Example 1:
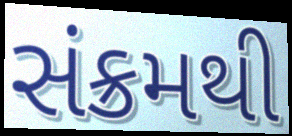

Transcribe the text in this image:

સંક્રમથી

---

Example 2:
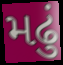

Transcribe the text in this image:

મઢું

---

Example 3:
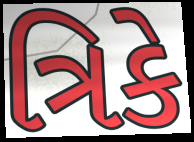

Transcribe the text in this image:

ત્રિકે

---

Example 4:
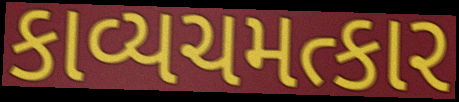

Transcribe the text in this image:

કાવ્યચમત્કાર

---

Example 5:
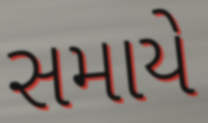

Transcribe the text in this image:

સમાયે